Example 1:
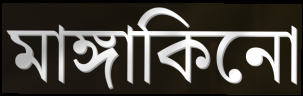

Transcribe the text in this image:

মাঙ্গাকিনো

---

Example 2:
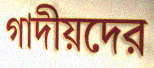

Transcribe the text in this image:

গাদীয়দের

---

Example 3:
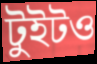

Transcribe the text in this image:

টুইটও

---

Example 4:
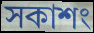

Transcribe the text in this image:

সকাশং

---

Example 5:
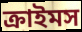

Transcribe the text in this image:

ক্রাইমস